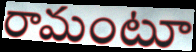
రామంటూ